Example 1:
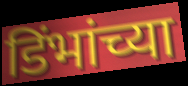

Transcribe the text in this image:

डिंभांच्या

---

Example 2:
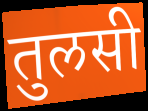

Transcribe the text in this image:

तुलसी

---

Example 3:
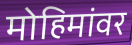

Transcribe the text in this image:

मोहिमांवर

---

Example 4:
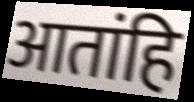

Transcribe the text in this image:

आतांहि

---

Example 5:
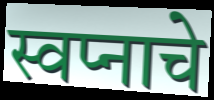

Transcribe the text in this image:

स्वप्नाचे